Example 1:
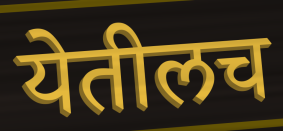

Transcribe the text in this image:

येतीलच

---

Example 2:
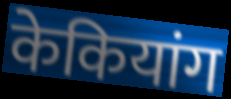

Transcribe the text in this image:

केकियांग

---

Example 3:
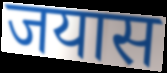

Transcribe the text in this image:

जयास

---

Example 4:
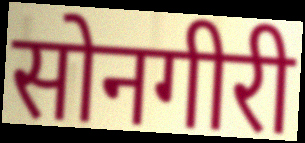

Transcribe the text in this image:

सोनगीरी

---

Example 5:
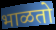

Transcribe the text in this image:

भाळतो